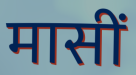
मासीं